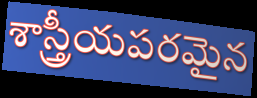
శాస్త్రీయపరమైన